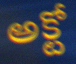
అక్టో